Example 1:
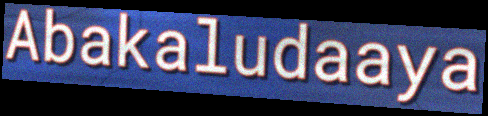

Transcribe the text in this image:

Abakaludaaya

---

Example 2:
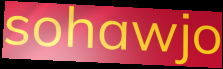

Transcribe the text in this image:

sohawjo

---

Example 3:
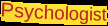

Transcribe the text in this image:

Psychologist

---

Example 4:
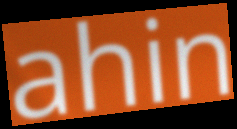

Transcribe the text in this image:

ahin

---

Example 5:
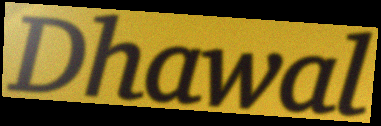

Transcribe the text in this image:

Dhawal